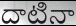
దాటినా